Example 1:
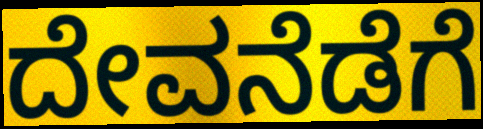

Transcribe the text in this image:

ದೇವನೆಡೆಗೆ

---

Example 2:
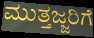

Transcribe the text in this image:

ಮುತ್ತಜ್ಜರಿಗೆ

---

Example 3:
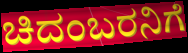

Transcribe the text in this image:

ಚಿದಂಬರನಿಗೆ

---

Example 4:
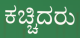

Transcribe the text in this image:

ಕಚ್ಚಿದರು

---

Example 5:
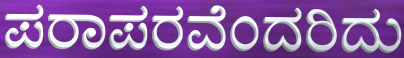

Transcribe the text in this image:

ಪರಾಪರವೆಂದರಿದು